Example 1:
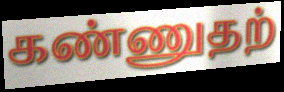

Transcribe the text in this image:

கண்ணுதற்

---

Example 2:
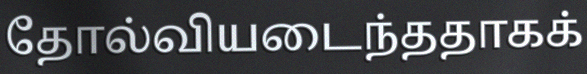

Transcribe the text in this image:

தோல்வியடைந்ததாகக்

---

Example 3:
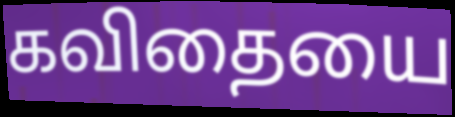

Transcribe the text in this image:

கவிதையை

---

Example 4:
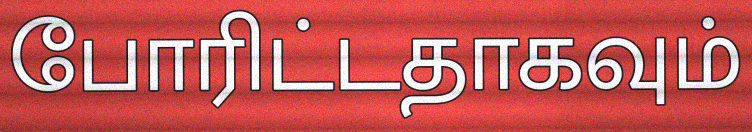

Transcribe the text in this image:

போரிட்டதாகவும்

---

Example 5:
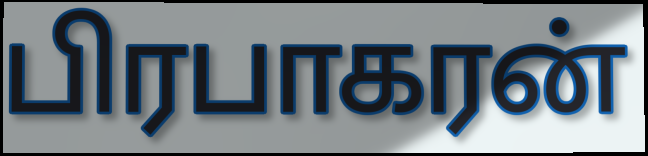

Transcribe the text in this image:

பிரபாகரன்